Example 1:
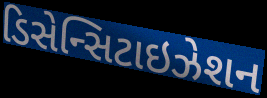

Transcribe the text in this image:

ડિસેન્સિટાઇઝેશન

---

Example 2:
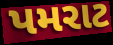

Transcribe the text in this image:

પમરાટ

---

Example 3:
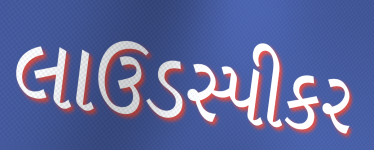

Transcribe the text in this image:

લાઉડસ્પીકર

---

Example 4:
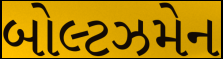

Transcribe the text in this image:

બોલ્ટઝમેન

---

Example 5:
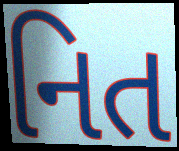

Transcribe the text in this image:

નિત